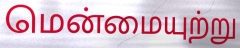
மென்மையுற்று